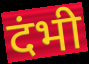
दंभी